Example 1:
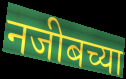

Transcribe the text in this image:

नजीबच्या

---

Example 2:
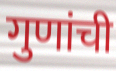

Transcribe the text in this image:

गुणांची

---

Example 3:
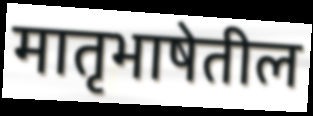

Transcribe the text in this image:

मातृभाषेतील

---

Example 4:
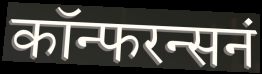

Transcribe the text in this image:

कॉन्फरन्सनं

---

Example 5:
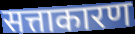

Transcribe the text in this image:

सत्ताकारण